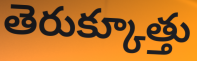
తెరుక్కూత్తు